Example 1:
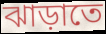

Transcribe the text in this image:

ঝাড়াতে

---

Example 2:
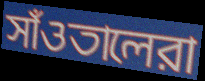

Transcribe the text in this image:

সাঁওতালেরা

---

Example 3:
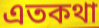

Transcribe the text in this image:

এতকথা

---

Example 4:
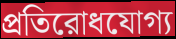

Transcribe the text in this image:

প্রতিরোধযোগ্য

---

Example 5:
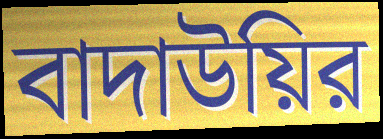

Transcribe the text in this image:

বাদাউয়ির